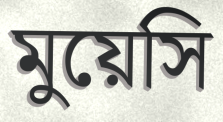
মুয়েসি